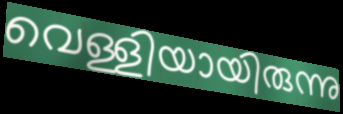
വെള്ളിയായിരുന്നു